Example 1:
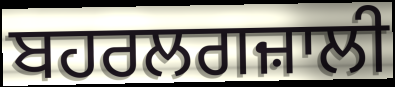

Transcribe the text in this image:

ਬਹਰਲਗਜ਼ਾਲੀ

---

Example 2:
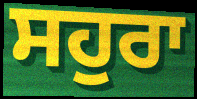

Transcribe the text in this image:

ਸਹੁਰਾ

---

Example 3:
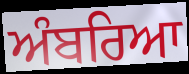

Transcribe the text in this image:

ਅੰਬਰਿਆ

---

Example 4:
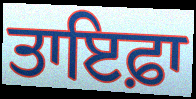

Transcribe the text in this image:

ਤਾਇਫ਼ਾ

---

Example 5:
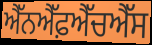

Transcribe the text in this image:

ਐੱਨਐੱਫ਼ਐੱਚਐੱਸ